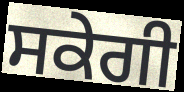
ਸਕੇਗੀ